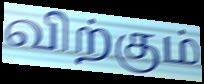
விற்கும்